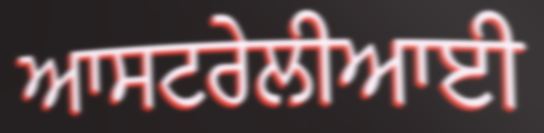
ਆਸਟਰੇਲੀਆਈ